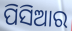
ପିସିଆର